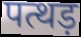
पत्थड़